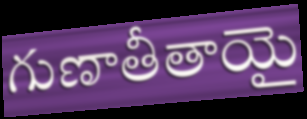
గుణాతీతాయై